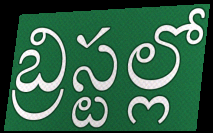
బ్రిస్టల్లో